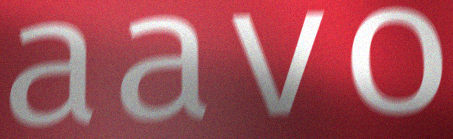
aavo